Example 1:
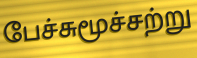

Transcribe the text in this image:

பேச்சுமூச்சற்று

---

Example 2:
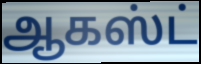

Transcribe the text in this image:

ஆகஸ்ட்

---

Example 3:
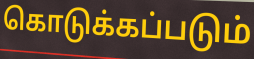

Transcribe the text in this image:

கொடுக்கப்படும்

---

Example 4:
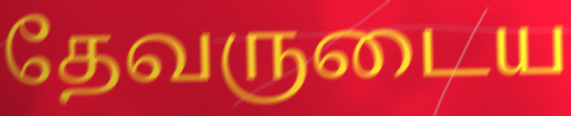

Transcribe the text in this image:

தேவருடைய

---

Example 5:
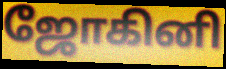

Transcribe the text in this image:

ஜோகினி